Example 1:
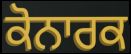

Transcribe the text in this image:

ਕੋਨਾਰਕ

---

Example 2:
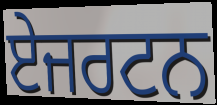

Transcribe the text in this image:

ਏਜਰਟਨ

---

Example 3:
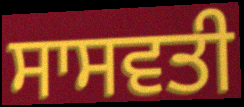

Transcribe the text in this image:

ਸਾਸਵਤੀ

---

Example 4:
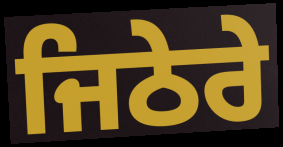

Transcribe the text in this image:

ਜਿਠੇਰੇ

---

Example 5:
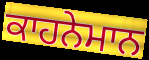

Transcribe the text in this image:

ਕਾਹਨੇਮਾਨ